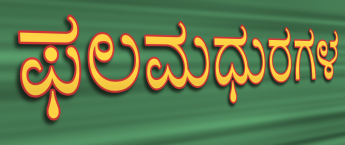
ಫಲಮಧುರಗಳ